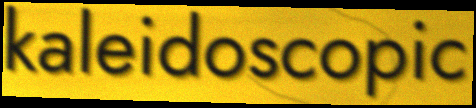
kaleidoscopic